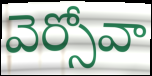
వెర్సోవా